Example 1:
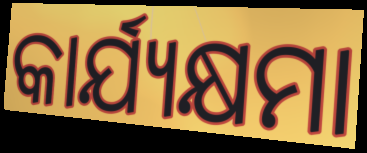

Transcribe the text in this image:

କାର୍ଯ୍ୟକ୍ଷମା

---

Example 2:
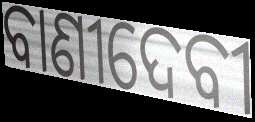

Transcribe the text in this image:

ବାଣୀଦେବୀ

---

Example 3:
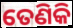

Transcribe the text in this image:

ତେଣିକି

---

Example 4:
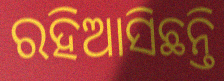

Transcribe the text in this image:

ରହିଆସିଛନ୍ତି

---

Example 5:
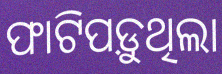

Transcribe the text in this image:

ଫାଟିପଡ଼ୁଥିଲା